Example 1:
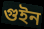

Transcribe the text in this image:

গুইন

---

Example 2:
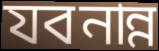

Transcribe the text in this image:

যবনান্ন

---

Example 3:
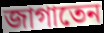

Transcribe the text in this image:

জাগাতেন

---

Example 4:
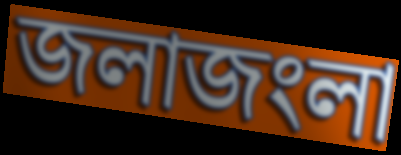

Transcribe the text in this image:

জলাজংলা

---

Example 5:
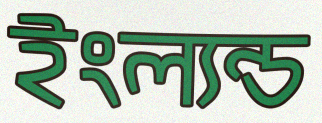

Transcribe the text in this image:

ইংল্যন্ড